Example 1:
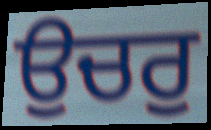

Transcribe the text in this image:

ਉਚਰੁ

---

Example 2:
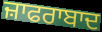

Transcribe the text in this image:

ਜ਼ਾਫਰਾਬਾਦ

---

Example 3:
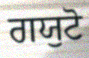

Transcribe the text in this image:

ਗਯੁਟੋ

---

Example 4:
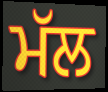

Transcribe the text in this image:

ਮੱਲ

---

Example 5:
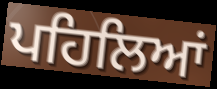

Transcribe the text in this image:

ਪਹਿਲਿਆਂ